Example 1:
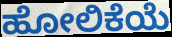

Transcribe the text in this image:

ಹೋಲಿಕೆಯೆ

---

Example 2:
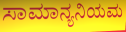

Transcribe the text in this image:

ಸಾಮಾನ್ಯನಿಯಮ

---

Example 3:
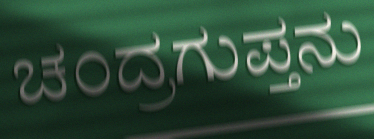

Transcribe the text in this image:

ಚಂದ್ರಗುಪ್ತನು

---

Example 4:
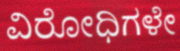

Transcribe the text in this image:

ವಿರೋಧಿಗಳೇ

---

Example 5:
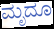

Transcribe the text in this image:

ಮೃದೂ